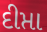
દીપ્તા